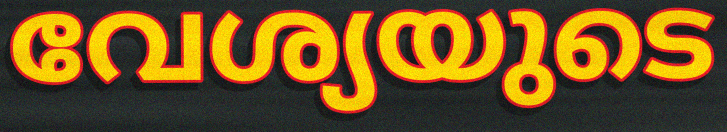
വേശ്യയുടെ